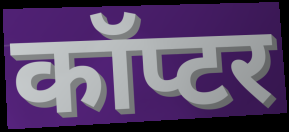
कॉप्टर